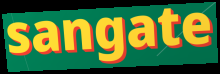
sangate